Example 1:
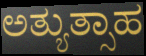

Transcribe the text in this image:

ಅತ್ಯುತ್ಸಾಹ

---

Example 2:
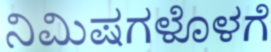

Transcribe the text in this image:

ನಿಮಿಷಗಳೊಳಗೆ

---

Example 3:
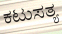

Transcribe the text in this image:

ಕಟುಸತ್ಯ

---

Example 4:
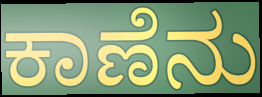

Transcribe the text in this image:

ಕಾಣೆನು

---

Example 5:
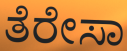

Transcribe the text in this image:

ತೆರೇಸಾ